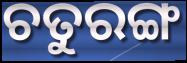
ଚତୁରଙ୍ଗ